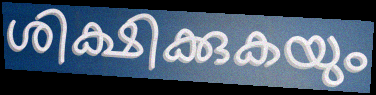
ശിക്ഷിക്കുകയും